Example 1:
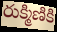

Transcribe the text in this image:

రుక్మిణికి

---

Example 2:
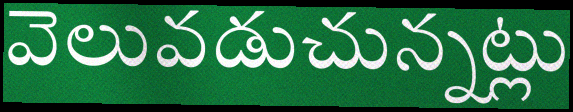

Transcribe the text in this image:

వెలువడుచున్నట్లు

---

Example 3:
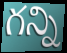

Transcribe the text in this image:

గన్ని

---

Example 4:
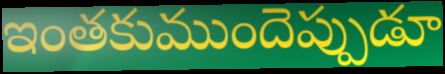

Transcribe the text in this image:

ఇంతకుముందెప్పుడూ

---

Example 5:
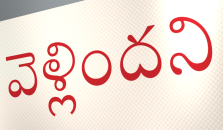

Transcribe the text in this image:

వెళ్లిందని